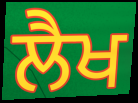
ਲੈਖ